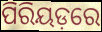
ପିରିୟଡ଼ରେ